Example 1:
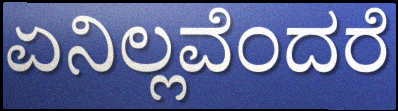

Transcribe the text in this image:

ಏನಿಲ್ಲವೆಂದರೆ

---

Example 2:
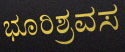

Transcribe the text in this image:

ಭೂರಿಶ್ರವಸ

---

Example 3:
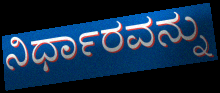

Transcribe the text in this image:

ನಿರ್ಧಾರವನ್ನು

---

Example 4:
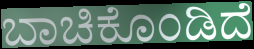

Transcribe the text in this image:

ಬಾಚಿಕೊಂಡಿದೆ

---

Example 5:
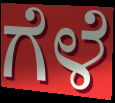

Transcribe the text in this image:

ಗೆಳೆ